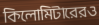
কিলোমিটারেরও